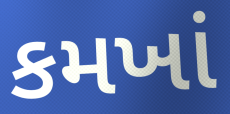
કમખાં